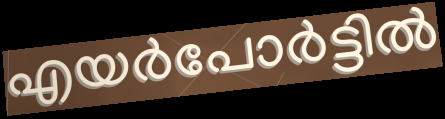
എയർപോർട്ടിൽ